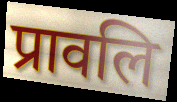
प्रावलि